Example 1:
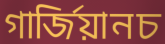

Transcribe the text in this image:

গাৰ্জিয়ানচ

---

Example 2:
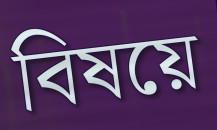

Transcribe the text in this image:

বিষয়ে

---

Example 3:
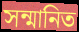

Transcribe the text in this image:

সন্মানিত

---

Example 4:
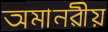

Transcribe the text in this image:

অমানৱীয়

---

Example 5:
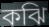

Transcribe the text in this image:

কঝি